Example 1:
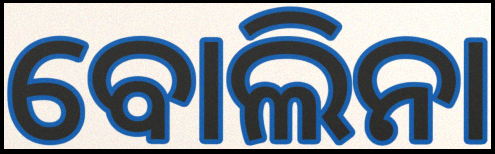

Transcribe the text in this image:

ବୋଲିନା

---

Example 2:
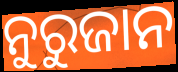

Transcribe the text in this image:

ନୁରୁଜାନ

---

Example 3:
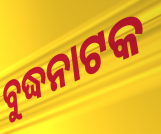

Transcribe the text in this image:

ବୁଦ୍ଧନାଟକ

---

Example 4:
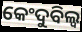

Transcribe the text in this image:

କେଂଦୁବିଲ୍ୱ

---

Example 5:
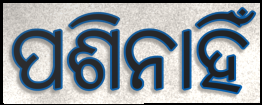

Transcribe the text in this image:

ପଶିନାହିଁ